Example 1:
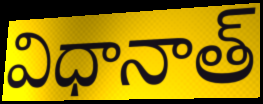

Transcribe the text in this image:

విధానాత్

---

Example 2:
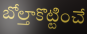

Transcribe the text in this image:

బోల్తాకొట్టించే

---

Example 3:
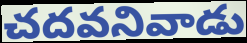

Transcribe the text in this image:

చదవనివాడు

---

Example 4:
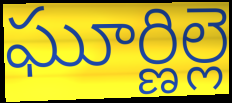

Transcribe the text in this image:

ఘూర్ణిల్లె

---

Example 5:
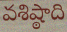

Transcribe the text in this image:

వశిష్ఠాది